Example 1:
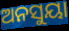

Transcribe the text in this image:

ଅନସୁୟା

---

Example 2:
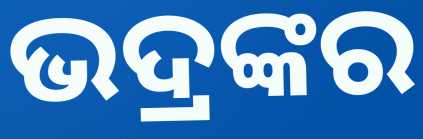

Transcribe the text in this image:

ଭଦ୍ରଙ୍କର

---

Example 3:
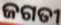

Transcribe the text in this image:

ଜଗତୀ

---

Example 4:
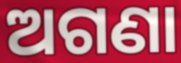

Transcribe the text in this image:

ଅଗଣା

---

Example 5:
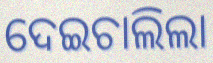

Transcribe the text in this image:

ଦେଇଚାଲିଲା